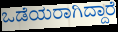
ಒಡೆಯರಾಗಿದ್ದಾರೆ